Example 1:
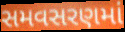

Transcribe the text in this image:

સમવસરણમાં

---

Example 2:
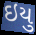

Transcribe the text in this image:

ઇયુ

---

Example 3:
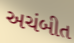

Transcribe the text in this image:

અચંબીત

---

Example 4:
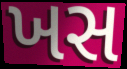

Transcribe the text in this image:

ખસ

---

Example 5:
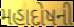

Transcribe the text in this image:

મહાદોષની